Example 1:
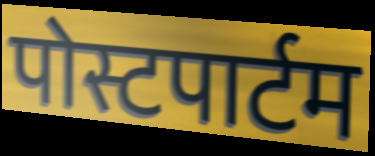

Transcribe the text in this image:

पोस्टपार्टम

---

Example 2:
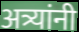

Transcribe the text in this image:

अत्र्यांनी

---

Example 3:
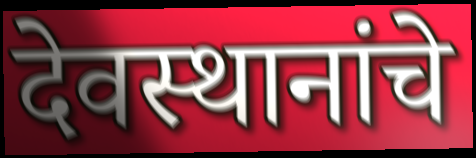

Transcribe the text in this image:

देवस्थानांचे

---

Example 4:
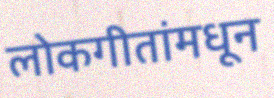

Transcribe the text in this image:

लोकगीतांमधून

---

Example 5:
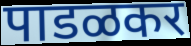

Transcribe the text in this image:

पाडळकर